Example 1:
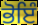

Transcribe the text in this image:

ਭੋਇੰ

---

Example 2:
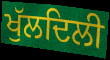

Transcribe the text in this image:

ਖੁੱਲਦਿਲੀ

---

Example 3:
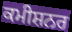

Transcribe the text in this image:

ਕਮੀਸ਼ਨਰ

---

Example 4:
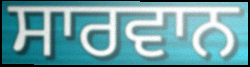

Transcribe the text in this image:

ਸਾਰਵਾਨ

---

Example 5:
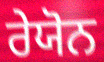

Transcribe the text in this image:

ਰੇਯੋਨ